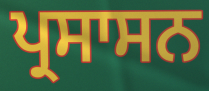
ਪ੍ਰਸਾਸਨ